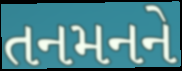
તનમનને